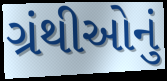
ગ્રંથીઓનું